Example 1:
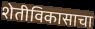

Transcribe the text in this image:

शेतीविकासाचा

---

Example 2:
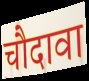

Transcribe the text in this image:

चौदावा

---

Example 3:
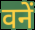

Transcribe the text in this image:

वनें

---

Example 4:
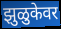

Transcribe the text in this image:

झुळुकेवर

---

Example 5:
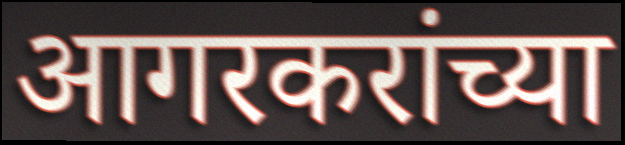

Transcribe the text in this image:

आगरकरांच्या